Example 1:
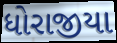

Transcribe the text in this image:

ધોરાજીયા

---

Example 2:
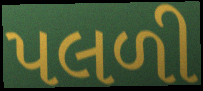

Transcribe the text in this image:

પલળી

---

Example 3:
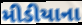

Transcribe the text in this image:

મીડીયાના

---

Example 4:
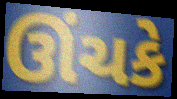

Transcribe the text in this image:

ઊંચકે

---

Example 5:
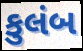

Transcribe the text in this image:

કુલંબ